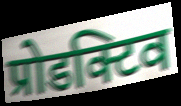
प्रोडक्टिव